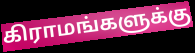
கிராமங்களுக்கு